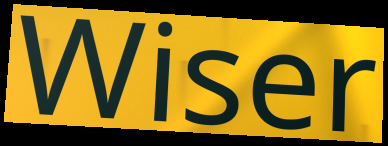
Wiser